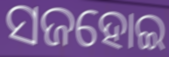
ସଜହୋଇ